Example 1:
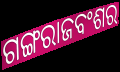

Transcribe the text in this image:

ଗଙ୍ଗରାଜବଂଶର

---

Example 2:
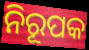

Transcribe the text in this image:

ନିରୂପକ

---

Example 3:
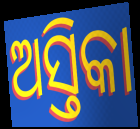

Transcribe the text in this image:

ଅସ୍ତିକା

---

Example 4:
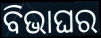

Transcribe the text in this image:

ବିଭାଘର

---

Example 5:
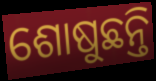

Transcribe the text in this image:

ଶୋଷୁଛନ୍ତି